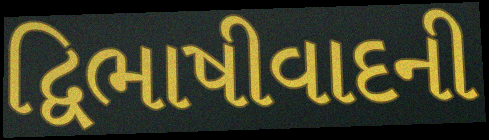
દ્વિભાષીવાદની